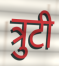
त्रुटी